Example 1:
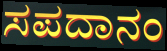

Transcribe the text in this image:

ಸಪದಾನಂ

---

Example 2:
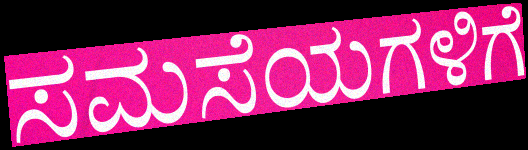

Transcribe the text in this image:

ಸಮಸೆಯಗಳಿಗೆ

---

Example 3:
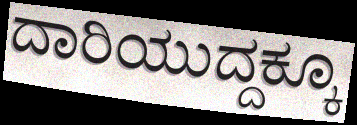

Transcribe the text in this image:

ದಾರಿಯುದ್ದಕ್ಕೂ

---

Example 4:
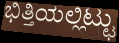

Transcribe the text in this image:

ಭಿತ್ತಿಯಲ್ಲಿಟ್ಟು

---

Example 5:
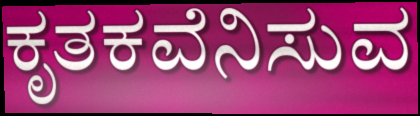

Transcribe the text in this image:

ಕೃತಕವೆನಿಸುವ